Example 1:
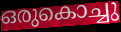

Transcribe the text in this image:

ഒരുകൊച്ചു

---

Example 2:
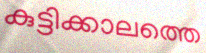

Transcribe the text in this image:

കുട്ടിക്കാലത്തെ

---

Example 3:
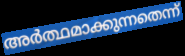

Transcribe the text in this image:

അർത്ഥമാക്കുന്നതെന്ന്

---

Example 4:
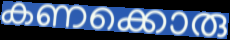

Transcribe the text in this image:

കണക്കൊരു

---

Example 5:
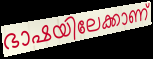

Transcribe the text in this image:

ഭാഷയിലേക്കാണ്